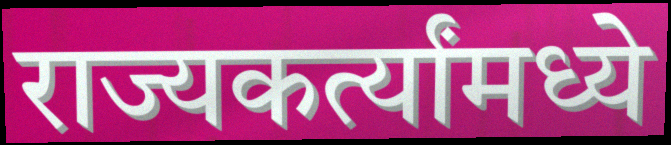
राज्यकर्त्यांमध्ये